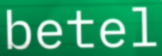
betel